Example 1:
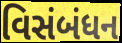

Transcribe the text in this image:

વિસંબંધન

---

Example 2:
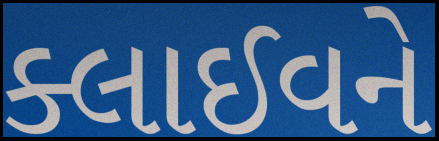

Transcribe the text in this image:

ક્લાઈવને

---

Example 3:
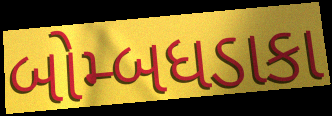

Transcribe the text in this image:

બોમ્બધડાકા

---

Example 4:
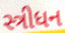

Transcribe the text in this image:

સ્ત્રીધન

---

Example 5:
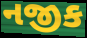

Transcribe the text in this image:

નજીક